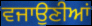
ਵਜਾਉਣੀਆਂ